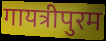
गायत्रीपुरम